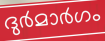
ദുർമാർഗം